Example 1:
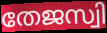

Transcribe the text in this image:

തേജസ്വി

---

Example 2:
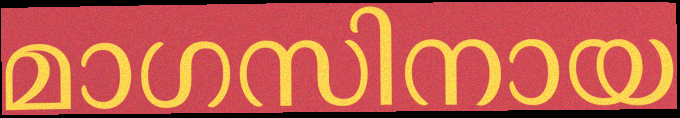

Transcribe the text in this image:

മാഗസിനായ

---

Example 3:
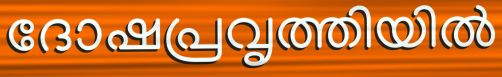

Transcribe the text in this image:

ദോഷപ്രവൃത്തിയിൽ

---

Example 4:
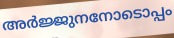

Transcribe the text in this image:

അർജ്ജുനനോടൊപ്പം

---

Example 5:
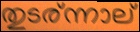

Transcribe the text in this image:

തുടര്ന്നാല്